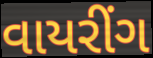
વાયરીંગ